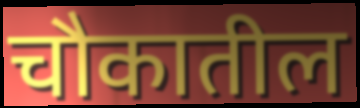
चौकातील